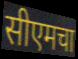
सीएमचा